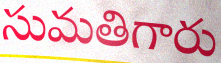
సుమతిగారు